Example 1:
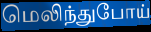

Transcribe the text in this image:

மெலிந்துபோய்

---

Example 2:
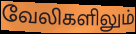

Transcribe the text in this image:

வேலிகளிலும்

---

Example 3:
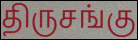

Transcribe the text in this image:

திருசங்கு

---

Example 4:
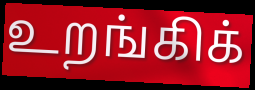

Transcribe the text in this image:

உறங்கிக்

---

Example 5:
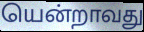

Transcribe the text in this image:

யென்றாவது